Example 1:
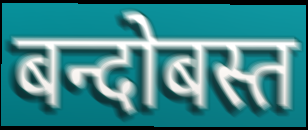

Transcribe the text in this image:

बन्दोबस्त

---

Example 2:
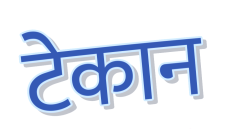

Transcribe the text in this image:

टेकान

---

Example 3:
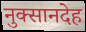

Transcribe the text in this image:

नुक्सानदेह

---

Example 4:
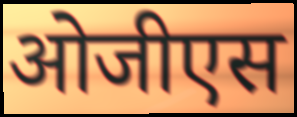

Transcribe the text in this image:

ओजीएस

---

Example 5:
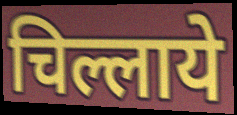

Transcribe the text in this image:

चिल्लाये